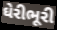
ઘેરીભૂરી